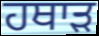
ਹਥਾੜ